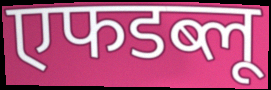
एफडब्लू